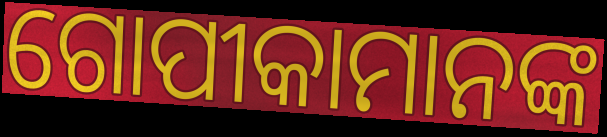
ଗୋପୀକାମାନଙ୍କ